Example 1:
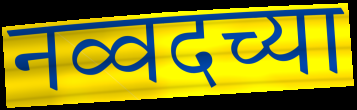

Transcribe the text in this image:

नव्वदच्या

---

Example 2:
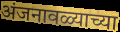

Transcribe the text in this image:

अंजनावळ्याच्या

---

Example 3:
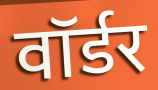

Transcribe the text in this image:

वॉर्डर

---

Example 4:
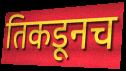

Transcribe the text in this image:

तिकडूनच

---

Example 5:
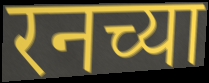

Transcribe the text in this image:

रनच्या